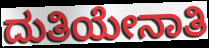
ದುತಿಯೇನಾತಿ